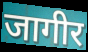
जागीर